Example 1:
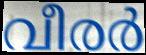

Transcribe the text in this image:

വീരർ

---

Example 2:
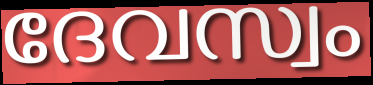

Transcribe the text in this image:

ദേവസ്വം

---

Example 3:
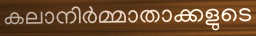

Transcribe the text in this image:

കലാനിർമ്മാതാക്കളുടെ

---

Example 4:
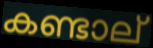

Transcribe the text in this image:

കണ്ടാല്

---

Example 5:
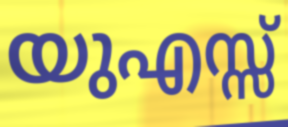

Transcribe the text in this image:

യുഎസ്സ്